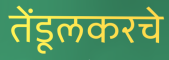
तेंडूलकरचे